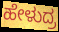
ಹೇಳುದ್ರ